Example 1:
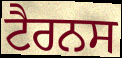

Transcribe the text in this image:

ਟੈਰਨਸ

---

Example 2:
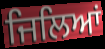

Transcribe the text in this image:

ਜਿਲਿਆਂ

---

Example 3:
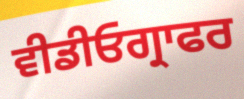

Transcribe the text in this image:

ਵੀਡੀਓਗ੍ਰਾਫਰ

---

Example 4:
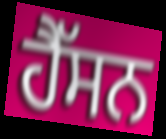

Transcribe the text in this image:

ਹੈੱਸਨ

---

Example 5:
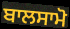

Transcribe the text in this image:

ਬਾਲਸਾਮੋ